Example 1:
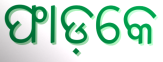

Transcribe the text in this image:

ଫାଡ଼କେ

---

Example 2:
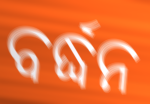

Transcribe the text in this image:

ବର୍ଦ୍ଧନ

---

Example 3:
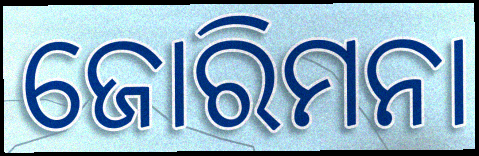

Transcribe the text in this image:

ଜୋରିମନା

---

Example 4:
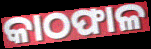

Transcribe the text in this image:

କାଠଫାଳ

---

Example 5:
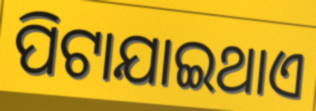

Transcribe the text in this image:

ପିଟାଯାଇଥାଏ